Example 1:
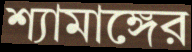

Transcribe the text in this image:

শ্যামাঙ্গের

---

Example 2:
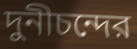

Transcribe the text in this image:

দুনীচন্দের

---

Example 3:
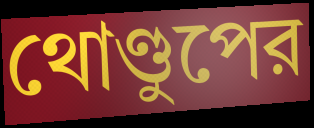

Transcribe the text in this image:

থোণ্ডুপের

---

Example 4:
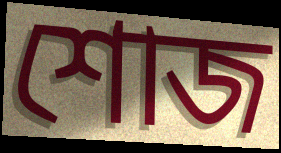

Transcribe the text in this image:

শোজ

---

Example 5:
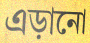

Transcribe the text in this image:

এড়ানো